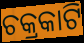
ଚକ୍ରକାଟି